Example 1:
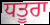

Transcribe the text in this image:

ਧਤੂਰਾ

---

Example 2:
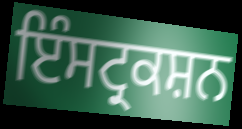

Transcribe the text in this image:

ਇੰਸਟ੍ਰਕਸ਼ਨ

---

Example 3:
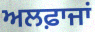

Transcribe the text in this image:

ਅਲਫ਼ਾਜਾਂ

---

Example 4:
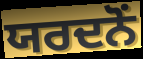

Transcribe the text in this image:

ਯਰਦਨੋਂ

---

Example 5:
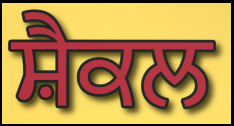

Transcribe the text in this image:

ਸ਼ੈਕਲ